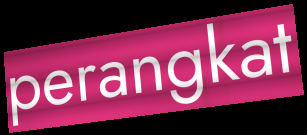
perangkat